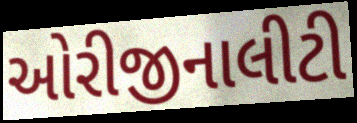
ઓરીજીનાલીટી